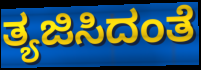
ತ್ಯಜಿಸಿದಂತೆ